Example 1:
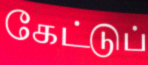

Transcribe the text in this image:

கேட்டுப்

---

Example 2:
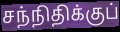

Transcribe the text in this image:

சந்நிதிக்குப்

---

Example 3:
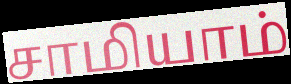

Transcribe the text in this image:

சாமியாம்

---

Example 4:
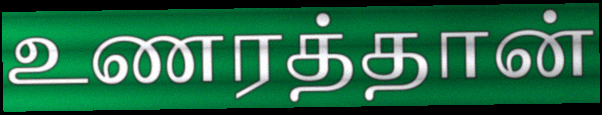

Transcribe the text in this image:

உணரத்தான்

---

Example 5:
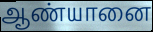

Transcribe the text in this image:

ஆண்யானை